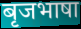
बृजभाषा